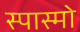
स्पास्मो